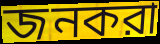
জনকরা